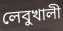
লেবুখালী